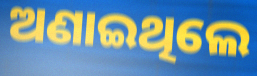
ଅଣାଇଥିଲେ